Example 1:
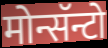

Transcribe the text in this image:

मोन्सॅन्टो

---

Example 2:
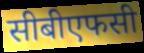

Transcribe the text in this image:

सीबीएफसी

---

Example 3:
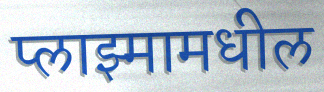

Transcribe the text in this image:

प्लाझ्मामधील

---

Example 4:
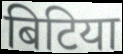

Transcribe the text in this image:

बिटिया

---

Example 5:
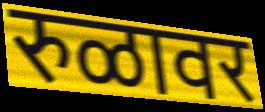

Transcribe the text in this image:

रुळावर